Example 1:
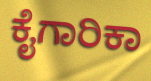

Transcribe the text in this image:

ಕೈಗಾರಿಕಾ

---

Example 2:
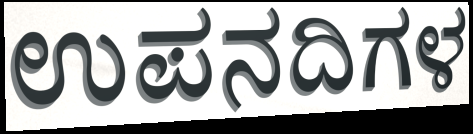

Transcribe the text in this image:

ಉಪನದಿಗಳ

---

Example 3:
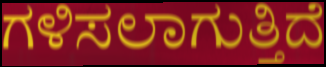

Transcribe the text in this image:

ಗಳಿಸಲಾಗುತ್ತಿದೆ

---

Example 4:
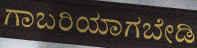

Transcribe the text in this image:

ಗಾಬರಿಯಾಗಬೇಡಿ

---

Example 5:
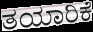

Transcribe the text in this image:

ತಯಾರಿಕೆ